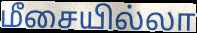
மீசையில்லா